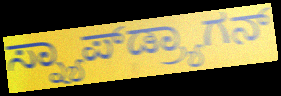
ಸ್ನ್ಯಾಪ್‌ಡ್ರ್ಯಾಗನ್